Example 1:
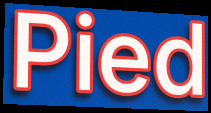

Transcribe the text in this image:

Pied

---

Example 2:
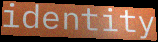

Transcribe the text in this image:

identity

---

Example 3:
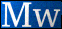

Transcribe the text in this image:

Mw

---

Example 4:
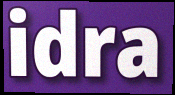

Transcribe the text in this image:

idra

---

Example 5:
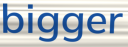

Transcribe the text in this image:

bigger